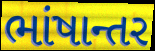
ભાંષાન્તર